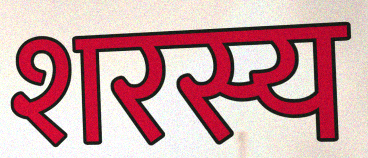
शरस्य